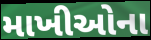
માખીઓના